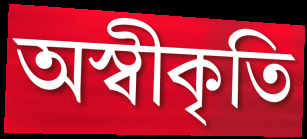
অস্বীকৃতি